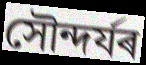
সৌন্দৰ্যৰ